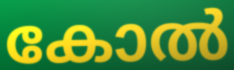
കോൽ